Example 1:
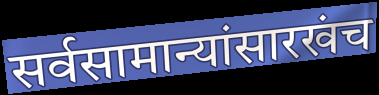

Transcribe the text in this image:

सर्वसामान्यांसारखंच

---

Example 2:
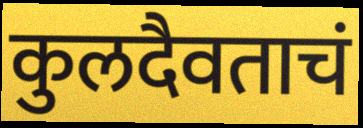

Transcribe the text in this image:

कुलदैवताचं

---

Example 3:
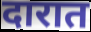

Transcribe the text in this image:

दारात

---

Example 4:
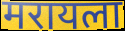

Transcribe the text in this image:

मरायला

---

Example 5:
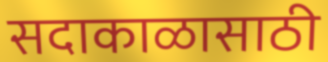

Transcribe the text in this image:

सदाकाळासाठी